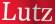
Lutz